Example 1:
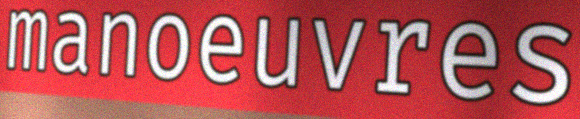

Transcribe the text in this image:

manoeuvres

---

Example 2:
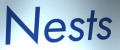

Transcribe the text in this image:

Nests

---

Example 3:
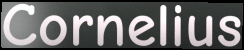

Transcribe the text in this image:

Cornelius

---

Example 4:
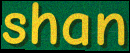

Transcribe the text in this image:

shan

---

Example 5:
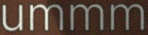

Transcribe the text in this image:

ummm